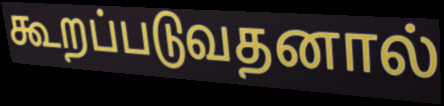
கூறப்படுவதனால்